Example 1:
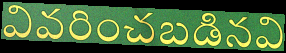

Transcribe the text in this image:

వివరించబడినవి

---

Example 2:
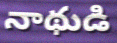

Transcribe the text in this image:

నాథుడి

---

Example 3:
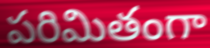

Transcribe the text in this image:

పరిమితంగా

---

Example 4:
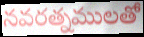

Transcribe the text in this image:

నవరత్నములతో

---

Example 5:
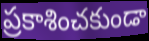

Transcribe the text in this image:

ప్రకాశించకుండా